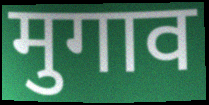
मुगाव